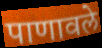
पाणावले